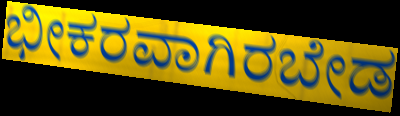
ಭೀಕರವಾಗಿರಬೇಡ